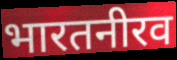
भारतनीरव